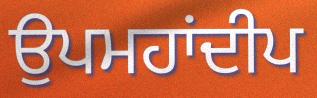
ਉਪਮਹਾਂਦੀਪ